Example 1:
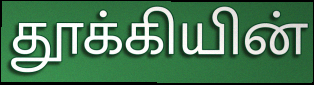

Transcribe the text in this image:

தூக்கியின்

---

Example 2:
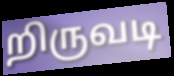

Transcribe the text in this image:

றிருவடி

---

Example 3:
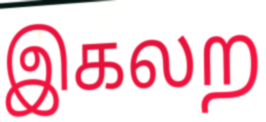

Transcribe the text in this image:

இகலற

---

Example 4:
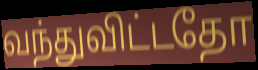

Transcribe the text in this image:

வந்துவிட்டதோ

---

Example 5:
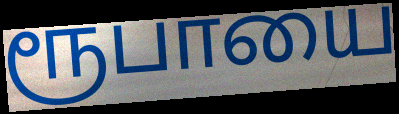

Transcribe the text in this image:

ரூபாயை